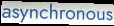
asynchronous